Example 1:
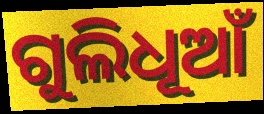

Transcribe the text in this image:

ଗୁଲିଧୂଆଁ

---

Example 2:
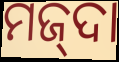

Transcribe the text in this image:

ମଜ୍‌ଦା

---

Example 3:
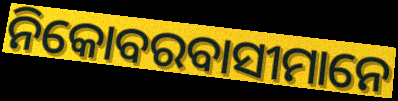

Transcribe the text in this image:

ନିକୋବରବାସୀମାନେ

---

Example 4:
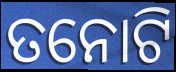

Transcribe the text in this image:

ତନୋଟି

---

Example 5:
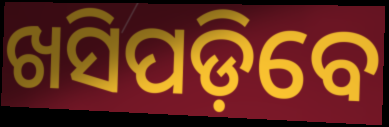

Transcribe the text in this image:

ଖସିପଡ଼ିବେ